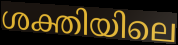
ശക്തിയിലെ